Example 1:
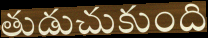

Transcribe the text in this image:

తుడుచుకుంది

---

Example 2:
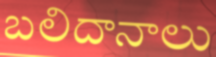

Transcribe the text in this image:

బలిదానాలు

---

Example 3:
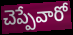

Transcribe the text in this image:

చెప్పేవారో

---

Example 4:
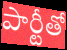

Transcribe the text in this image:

పార్టీతో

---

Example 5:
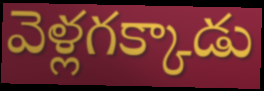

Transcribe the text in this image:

వెళ్లగక్కాడు